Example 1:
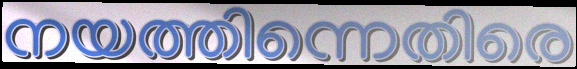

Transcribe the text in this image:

നയത്തിന്നെതിരെ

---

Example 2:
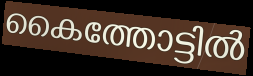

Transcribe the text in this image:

കൈത്തോട്ടിൽ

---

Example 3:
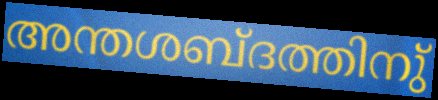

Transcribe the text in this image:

അന്തശബ്ദത്തിനു്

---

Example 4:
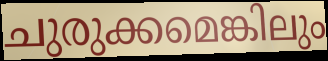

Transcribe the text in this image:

ചുരുക്കമെങ്കിലും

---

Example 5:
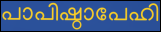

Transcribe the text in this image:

പാപിഷ്ഠാപേഹി